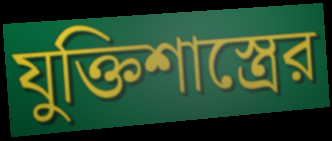
যুক্তিশাস্ত্রের